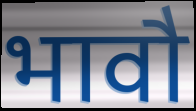
भावौ